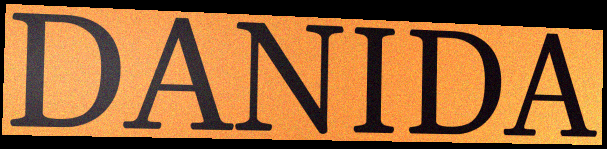
DANIDA